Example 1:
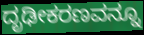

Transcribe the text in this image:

ದೃಢೀಕರಣವನ್ನೂ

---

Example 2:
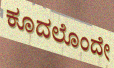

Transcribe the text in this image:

ಕೂದಲೊಂದೇ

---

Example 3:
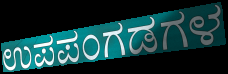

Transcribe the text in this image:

ಉಪಪಂಗಡಗಳ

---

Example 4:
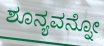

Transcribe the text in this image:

ಶೂನ್ಯವನ್ನೋ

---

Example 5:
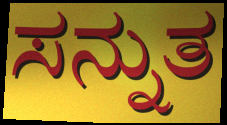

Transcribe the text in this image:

ಸನ್ನುತ